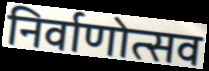
निर्वाणोत्सव